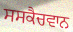
ਸਸਕੈਚਵਾਨ